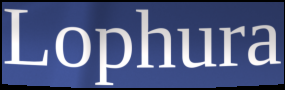
Lophura